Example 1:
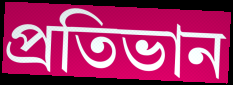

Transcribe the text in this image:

প্রতিভান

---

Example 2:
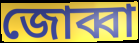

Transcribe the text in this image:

জোব্বা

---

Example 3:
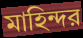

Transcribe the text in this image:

মাহিন্দর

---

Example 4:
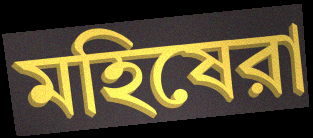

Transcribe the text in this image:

মহিষেরা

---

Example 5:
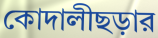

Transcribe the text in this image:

কোদালীছড়ার